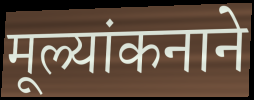
मूल्यांकनाने